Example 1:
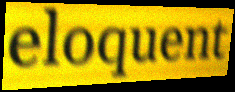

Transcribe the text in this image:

eloquent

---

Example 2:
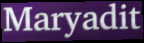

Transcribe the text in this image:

Maryadit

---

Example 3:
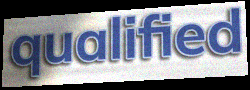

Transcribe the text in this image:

qualified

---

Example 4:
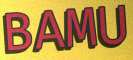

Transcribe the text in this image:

BAMU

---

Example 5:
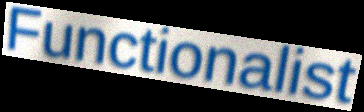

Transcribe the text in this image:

Functionalist